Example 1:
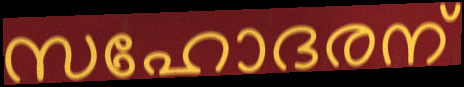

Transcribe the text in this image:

സഹോദരന്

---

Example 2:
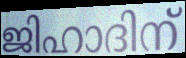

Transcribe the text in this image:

ജിഹാദിന്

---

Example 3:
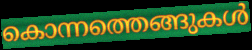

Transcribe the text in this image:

കൊന്നത്തെങ്ങുകൾ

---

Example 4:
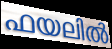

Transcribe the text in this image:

ഫയലിൽ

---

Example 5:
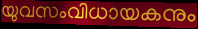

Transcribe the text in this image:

യുവസംവിധായകനും